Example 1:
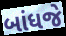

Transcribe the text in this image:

બાંધજે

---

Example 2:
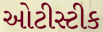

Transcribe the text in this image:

ઓટીસ્ટીક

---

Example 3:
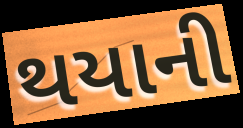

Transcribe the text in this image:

થયાની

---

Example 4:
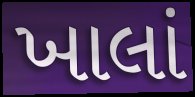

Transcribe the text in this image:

ખાલાં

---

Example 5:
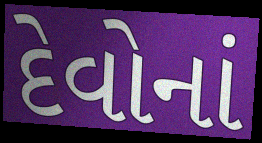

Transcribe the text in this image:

દેવોનાં